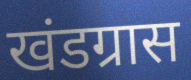
खंडग्रास